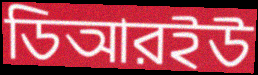
ডিআরইউ